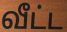
வீட்ட